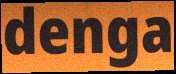
denga